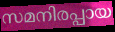
സമനിരപ്പായ